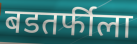
बडतर्फीला